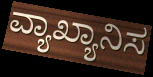
ವ್ಯಾಖ್ಯಾನಿಸ